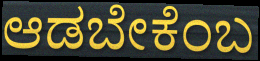
ಆಡಬೇಕೆಂಬ